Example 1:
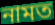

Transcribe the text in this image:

নামত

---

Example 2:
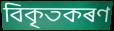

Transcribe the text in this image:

বিকৃতকৰণ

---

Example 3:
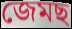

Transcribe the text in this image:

জেমছ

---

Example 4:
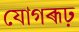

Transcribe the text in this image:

যোগৰূঢ়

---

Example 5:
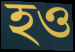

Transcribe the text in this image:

হও